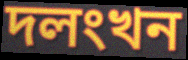
দলংখন